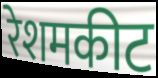
रेशमकीट